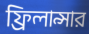
ফ্রিলান্সার